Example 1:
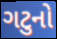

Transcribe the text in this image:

ગટુનો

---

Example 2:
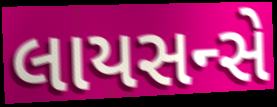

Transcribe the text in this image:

લાયસન્સે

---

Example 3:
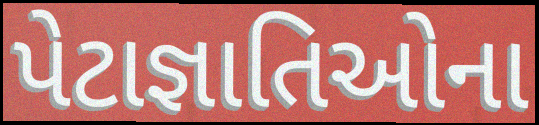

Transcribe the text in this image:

પેટાજ્ઞાતિઓના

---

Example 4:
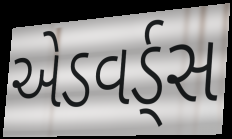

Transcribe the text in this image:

એડવર્ડ્સ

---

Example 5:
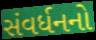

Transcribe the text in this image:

સંવર્ધનનો